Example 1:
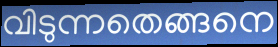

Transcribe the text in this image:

വിടുന്നതെങ്ങനെ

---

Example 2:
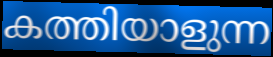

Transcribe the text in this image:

കത്തിയാളുന്ന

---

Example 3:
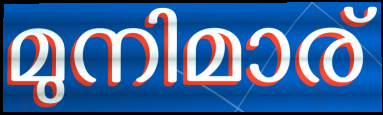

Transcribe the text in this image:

മുനിമാര്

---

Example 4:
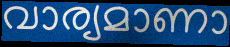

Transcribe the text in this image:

വാര്യമാണാ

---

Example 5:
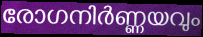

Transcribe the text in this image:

രോഗനിർണ്ണയവും